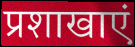
प्रशाखाएं